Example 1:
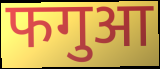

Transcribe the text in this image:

फगुआ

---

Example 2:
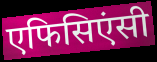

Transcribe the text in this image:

एफिसिएंसी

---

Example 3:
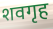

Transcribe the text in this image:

शवगृह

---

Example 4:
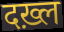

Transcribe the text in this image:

दख़्ल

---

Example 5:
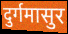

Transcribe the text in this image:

दुर्गमासुर